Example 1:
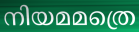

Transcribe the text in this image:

നിയമമത്രെ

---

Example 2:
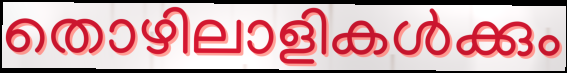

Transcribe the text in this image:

തൊഴിലാളികൾക്കും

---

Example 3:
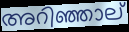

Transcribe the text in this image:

അറിഞ്ഞാല്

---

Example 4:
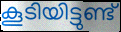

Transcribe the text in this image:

കൂടിയിട്ടുണ്ട്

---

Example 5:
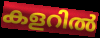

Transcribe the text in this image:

കളറിൽ